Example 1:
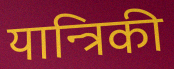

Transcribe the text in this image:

यान्त्रिकी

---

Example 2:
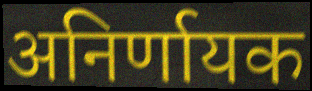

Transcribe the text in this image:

अनिर्णायक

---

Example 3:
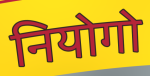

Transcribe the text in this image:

नियोगो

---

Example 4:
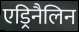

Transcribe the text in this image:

एड्रिनैलिन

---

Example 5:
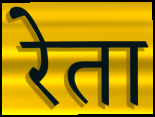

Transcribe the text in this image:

रेता